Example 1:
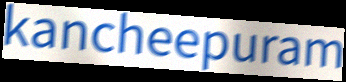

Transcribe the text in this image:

kancheepuram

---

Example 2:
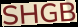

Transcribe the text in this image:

SHGB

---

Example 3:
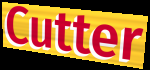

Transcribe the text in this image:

Cutter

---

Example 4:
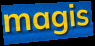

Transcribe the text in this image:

magis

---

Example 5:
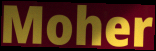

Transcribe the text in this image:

Moher